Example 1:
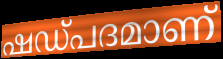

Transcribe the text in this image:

ഷഡ്പദമാണ്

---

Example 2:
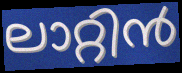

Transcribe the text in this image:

ലാറ്റിൻ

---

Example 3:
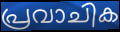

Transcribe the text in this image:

പ്രവാചിക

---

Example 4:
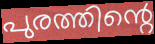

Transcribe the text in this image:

പുരത്തിന്റെ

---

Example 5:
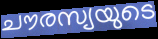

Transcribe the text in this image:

ചൗരസ്യയുടെ